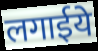
लगाईये